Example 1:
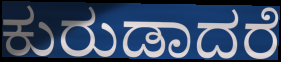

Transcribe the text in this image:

ಕುರುಡಾದರೆ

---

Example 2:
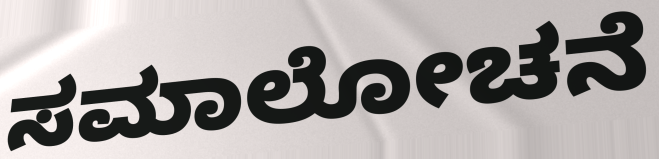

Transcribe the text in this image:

ಸಮಾಲೋಚನೆ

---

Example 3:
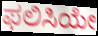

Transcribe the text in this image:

ಫಲಿಸಿಯೇ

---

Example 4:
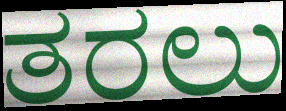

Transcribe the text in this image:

ತರಲು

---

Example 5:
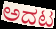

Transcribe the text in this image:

ಅದಟ